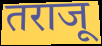
तराजू